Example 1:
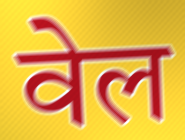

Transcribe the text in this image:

वेल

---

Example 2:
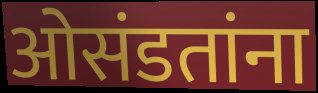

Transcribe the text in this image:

ओसंडतांना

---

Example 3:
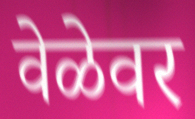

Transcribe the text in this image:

वेळेवर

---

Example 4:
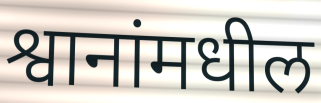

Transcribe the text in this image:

श्वानांमधील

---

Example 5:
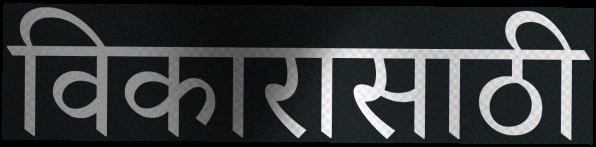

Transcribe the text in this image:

विकारासाठी